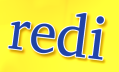
redi